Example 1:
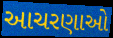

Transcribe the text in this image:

આચરણાઓ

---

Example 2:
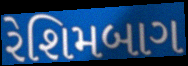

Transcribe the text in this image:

રેશિમબાગ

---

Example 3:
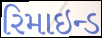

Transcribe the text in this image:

રિમાઇન્ડ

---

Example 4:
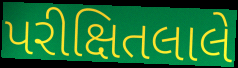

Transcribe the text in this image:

પરીક્ષિતલાલે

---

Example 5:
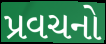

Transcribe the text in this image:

પ્રવચનો